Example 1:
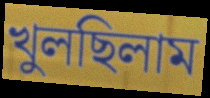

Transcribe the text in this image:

খুলছিলাম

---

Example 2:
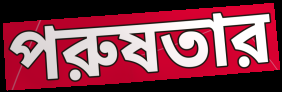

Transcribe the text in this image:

পরুষতার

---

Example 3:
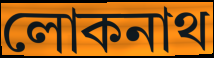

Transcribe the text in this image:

লোকনাথ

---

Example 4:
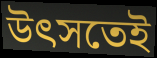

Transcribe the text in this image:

উৎসতেই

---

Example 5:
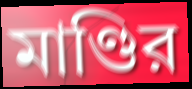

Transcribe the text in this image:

মাণ্ডির